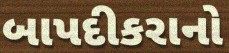
બાપદીકરાનો